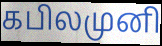
கபிலமுனி